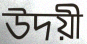
উদয়ী